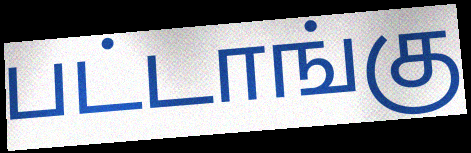
பட்டாங்கு